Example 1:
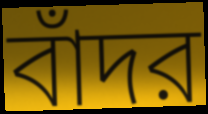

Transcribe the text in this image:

বাঁদর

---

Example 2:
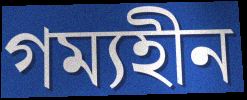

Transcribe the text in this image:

গম্যহীন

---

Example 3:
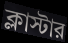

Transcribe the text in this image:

ক্লাস্টার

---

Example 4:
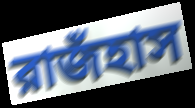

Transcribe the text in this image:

রাজঁহাস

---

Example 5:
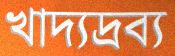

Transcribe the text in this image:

খাদ্যদ্রব্য